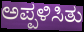
ಅಪ್ಪಳಿಸಿತು